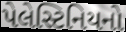
પેલેસ્ટિનિયનો